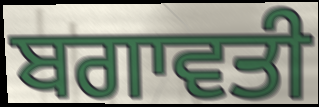
ਬਗਾਵਤੀ